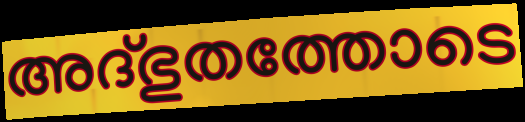
അദ്ഭുതത്തോടെ